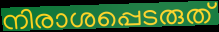
നിരാശപ്പെടരുത്